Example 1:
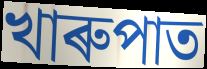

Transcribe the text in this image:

খাৰুপাত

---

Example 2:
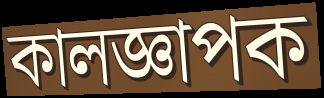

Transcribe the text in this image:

কালজ্ঞাপক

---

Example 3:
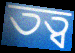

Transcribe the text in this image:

তত্ব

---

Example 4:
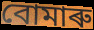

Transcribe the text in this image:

বোমাৰু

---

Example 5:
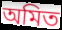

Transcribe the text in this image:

অমিত